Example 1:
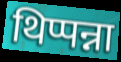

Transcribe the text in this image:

थिप्पन्ना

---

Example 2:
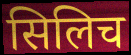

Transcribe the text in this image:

सिलिच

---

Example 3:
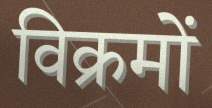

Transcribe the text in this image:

विक्रमों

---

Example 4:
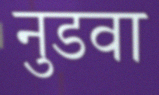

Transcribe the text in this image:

नुडवा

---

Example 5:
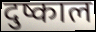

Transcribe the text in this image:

दुष्काल